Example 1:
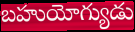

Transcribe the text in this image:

బహుయోగ్యుడు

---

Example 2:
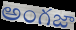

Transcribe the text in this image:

అంగజా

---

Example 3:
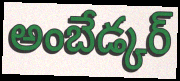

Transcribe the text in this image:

అంబేడ్కర్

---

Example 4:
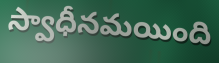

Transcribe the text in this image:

స్వాధీనమయింది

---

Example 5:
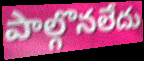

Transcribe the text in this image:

పాల్గొనలేదు